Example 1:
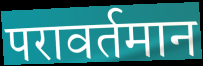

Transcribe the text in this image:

परावर्तमान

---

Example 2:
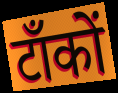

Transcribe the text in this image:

टाँकों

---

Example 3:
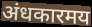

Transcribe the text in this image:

अंधकारमय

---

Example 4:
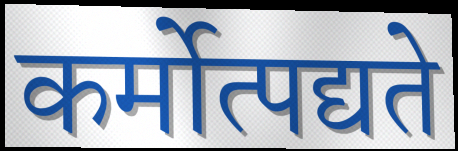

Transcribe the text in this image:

कर्मोत्पद्यते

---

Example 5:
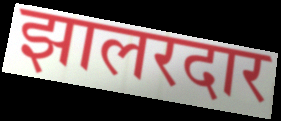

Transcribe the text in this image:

झालरदार